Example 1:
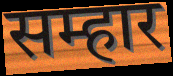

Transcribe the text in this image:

सम्हार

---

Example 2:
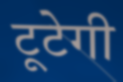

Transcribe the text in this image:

टूटेगी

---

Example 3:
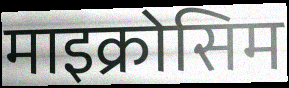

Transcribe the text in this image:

माइक्रोसिम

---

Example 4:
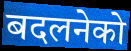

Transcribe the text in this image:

बदलनेको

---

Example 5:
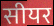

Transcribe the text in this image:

सीयर